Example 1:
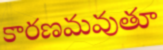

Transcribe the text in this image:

కారణమవుతూ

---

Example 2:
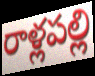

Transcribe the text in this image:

రాళ్లపల్లి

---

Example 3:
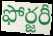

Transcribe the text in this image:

ఫోర్జరీ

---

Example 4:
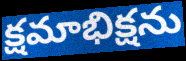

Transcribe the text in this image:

క్షమాభిక్షను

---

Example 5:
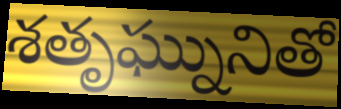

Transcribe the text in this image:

శతృఘ్నునితో